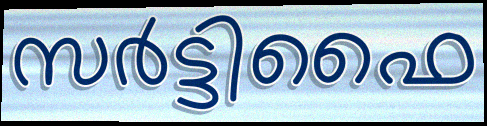
സർട്ടിഫൈ